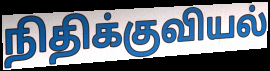
நிதிக்குவியல்